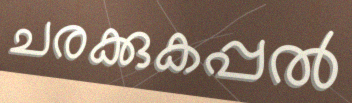
ചരക്കുകപ്പൽ